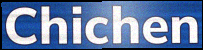
Chichen